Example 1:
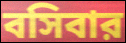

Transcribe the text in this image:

বসিবার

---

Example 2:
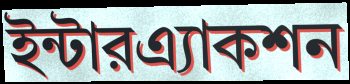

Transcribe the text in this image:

ইন্টারএ্যাকশন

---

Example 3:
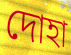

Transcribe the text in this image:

দোহা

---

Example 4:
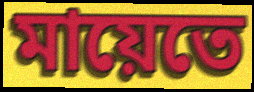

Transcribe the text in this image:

মায়েতে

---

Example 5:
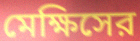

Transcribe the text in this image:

মেক্ষিসের